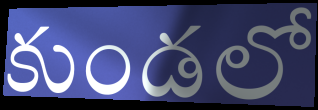
కుండలో